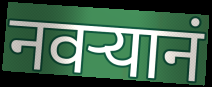
नवऱ्यानं